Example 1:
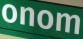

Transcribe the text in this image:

onom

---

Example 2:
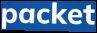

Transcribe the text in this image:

packet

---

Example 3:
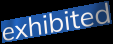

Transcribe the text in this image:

exhibited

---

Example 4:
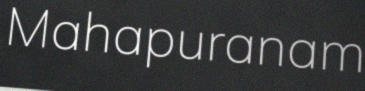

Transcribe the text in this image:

Mahapuranam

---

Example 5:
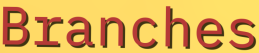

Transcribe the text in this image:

Branches